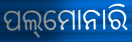
ପଲ୍‌ମୋନାରି